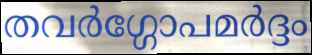
തവർഗ്ഗോപമർദ്ദം